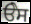
ੳੇਸ